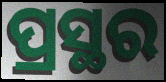
ପ୍ରସ୍ଥର